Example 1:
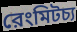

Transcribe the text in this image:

রেংমিটচ্য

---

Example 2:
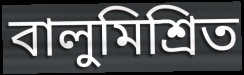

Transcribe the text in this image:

বালুমিশ্রিত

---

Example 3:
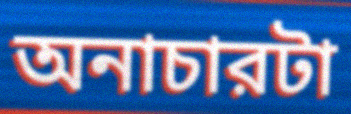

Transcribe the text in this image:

অনাচারটা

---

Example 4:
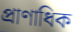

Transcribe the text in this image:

প্রাণাধিক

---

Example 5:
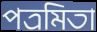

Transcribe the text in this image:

পত্রমিতা